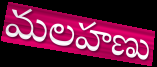
మలహణు